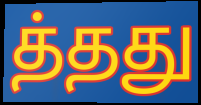
த்தது